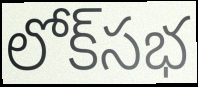
లోక్‌సభ